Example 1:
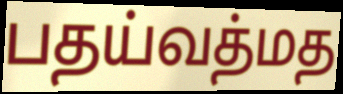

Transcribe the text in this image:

பதய்வத்மத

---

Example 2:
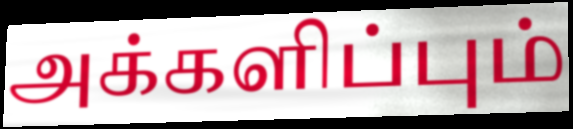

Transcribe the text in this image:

அக்களிப்பும்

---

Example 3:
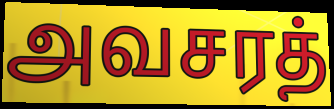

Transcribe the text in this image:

அவசரத்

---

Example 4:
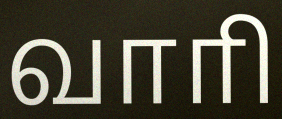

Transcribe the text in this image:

வாரி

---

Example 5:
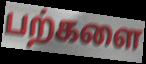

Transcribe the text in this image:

பற்களை